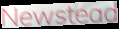
Newstead